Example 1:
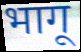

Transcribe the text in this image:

भागू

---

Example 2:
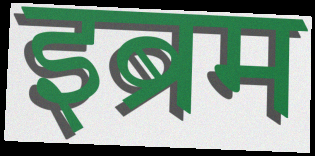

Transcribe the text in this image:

इब्रम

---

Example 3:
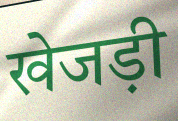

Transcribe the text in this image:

खेजड़ी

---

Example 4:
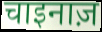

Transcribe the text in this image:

चाइनाज़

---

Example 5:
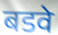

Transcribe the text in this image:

बडवे